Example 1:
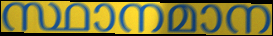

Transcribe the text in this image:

സ്ഥാനമാന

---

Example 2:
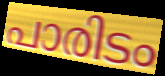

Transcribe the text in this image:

പാരിടം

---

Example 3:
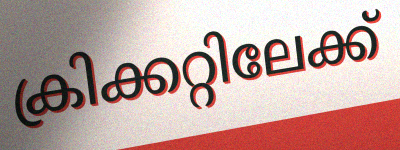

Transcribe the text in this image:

ക്രിക്കറ്റിലേക്ക്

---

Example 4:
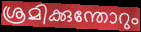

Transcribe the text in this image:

ശ്രമിക്കുന്തോറും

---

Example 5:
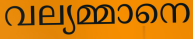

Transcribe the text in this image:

വല്യമ്മാനെ